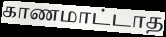
காணமாட்டாத